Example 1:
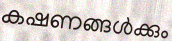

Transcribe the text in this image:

കഷണങ്ങൾക്കും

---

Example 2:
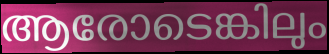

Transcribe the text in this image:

ആരോടെങ്കിലും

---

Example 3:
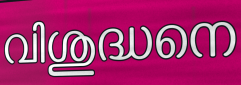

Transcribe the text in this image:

വിശുദ്ധനെ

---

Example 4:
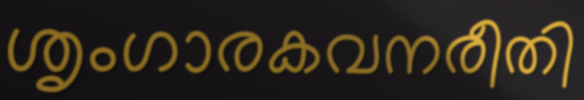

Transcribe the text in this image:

ശൃംഗാരകവനരീതി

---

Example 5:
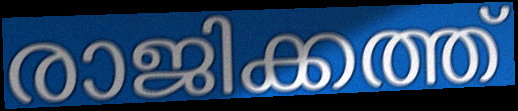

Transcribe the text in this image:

രാജിക്കത്ത്